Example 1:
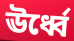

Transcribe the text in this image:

ঊর্ধ্বে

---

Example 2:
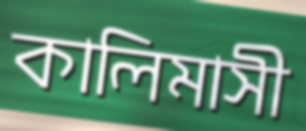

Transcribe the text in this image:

কালিমাসী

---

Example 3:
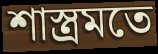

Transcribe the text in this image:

শাস্ত্রমতে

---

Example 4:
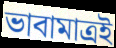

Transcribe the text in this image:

ভাবামাত্রই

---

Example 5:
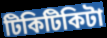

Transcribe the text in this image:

টিকিটিকিটা